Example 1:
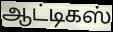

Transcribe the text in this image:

ஆட்டிகஸ்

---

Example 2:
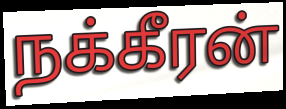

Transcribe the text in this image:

நக்கீரன்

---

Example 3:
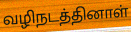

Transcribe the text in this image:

வழிநடத்தினாள்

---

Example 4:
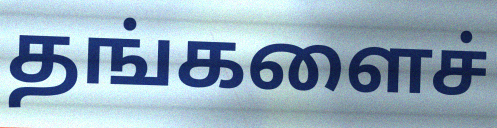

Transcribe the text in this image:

தங்களைச்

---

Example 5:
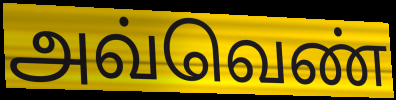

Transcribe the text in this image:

அவ்வெண்